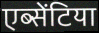
एब्सेंटिया